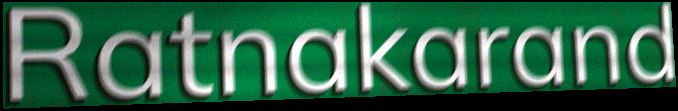
Ratnakarand